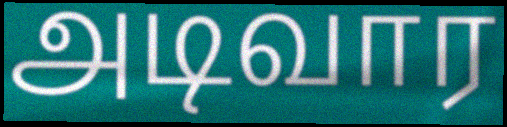
அடிவார